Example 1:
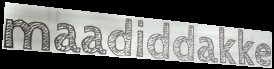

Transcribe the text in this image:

maadiddakke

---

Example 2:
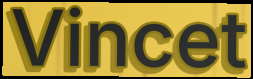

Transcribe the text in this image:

Vincet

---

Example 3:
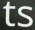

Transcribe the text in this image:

ts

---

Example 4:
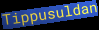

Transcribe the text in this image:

Tippusuldan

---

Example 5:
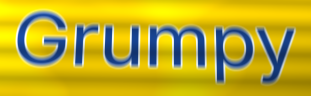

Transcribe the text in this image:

Grumpy